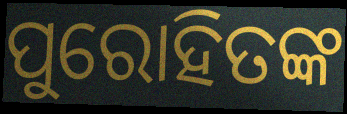
ପୁରୋହିତଙ୍କ